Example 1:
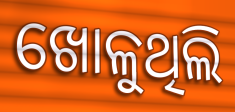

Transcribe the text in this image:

ଖୋଳୁଥିଲି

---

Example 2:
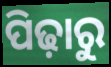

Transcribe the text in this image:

ପିଢ଼ାରୁ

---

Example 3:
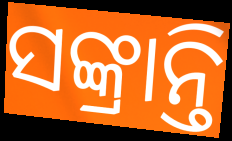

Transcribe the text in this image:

ସଙ୍କ୍ରାନ୍ତି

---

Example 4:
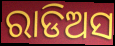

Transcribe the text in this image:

ରାଡିଅସ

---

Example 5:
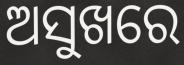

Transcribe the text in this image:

ଅସୁଖରେ